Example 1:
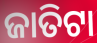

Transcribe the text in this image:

ଜାତିଟା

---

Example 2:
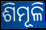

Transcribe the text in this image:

ଶିମୂଳି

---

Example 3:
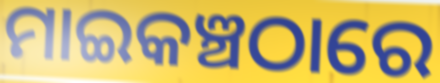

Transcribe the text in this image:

ମାଇକଞ୍ଚଠାରେ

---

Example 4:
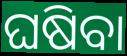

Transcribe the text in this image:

ଘଷିବା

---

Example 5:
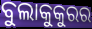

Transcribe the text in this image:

ବୁଲାକୁକୁରର